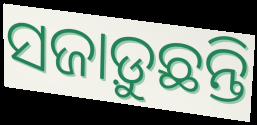
ସଜାଡ଼ୁଛନ୍ତି